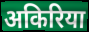
अकिरिया